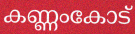
കണ്ണംകോട്